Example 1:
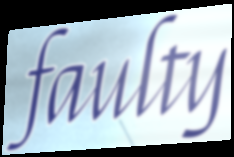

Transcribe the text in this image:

faulty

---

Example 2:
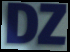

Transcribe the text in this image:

DZ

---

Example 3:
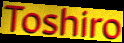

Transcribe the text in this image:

Toshiro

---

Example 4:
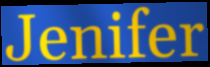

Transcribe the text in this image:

Jenifer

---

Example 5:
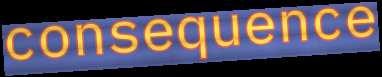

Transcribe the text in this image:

consequence